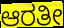
ಆರತೀ